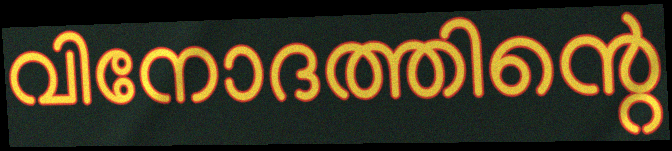
വിനോദത്തിന്റെ